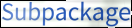
Subpackage